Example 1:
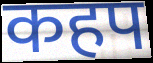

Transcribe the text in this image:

कहप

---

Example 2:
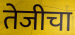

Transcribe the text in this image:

तेजीचा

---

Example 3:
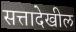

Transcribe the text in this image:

सत्तादेखील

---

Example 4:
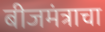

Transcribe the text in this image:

बीजमंत्राचा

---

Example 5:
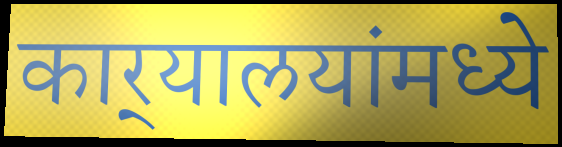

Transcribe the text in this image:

कार्यालयांमध्ये